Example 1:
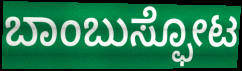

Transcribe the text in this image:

ಬಾಂಬುಸ್ಫೋಟ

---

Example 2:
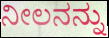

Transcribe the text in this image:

ನೀಲನನ್ನು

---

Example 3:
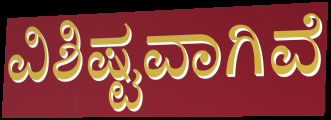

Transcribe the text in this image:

ವಿಶಿಷ್ಟವಾಗಿವೆ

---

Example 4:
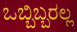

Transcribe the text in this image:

ಒಬ್ಬಿಬ್ಬರಲ್ಲ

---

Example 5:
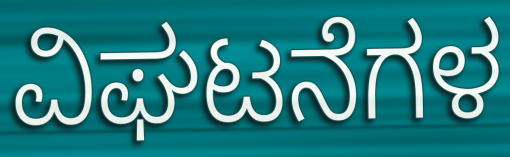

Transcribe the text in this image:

ವಿಘಟನೆಗಳ